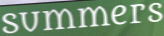
summers